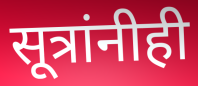
सूत्रांनीही